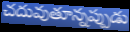
చదువుతూన్నప్పుడు